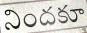
నిందకూ